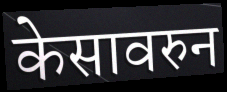
केसावरुन